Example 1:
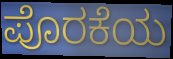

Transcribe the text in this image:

ಪೊರಕೆಯ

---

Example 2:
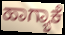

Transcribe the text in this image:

ಹಾಗ್ಯಾಕೆ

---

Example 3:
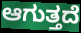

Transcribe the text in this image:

ಆಗುತ್ತದೆ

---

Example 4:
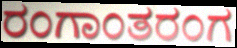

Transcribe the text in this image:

ರಂಗಾಂತರಂಗ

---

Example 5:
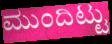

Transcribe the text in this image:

ಮುಂದಿಟ್ಟು